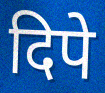
दिपे